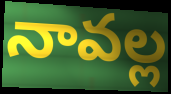
నావల్ల